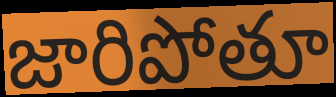
జారిపోతూ